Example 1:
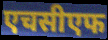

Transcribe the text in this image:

एचसीएफ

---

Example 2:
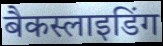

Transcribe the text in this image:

बैकस्लाइडिंग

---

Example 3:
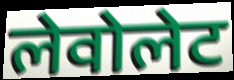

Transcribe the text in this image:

लेवोलेट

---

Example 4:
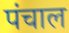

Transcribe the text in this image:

पंचाल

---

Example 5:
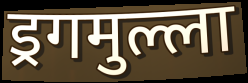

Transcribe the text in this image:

ड्रगमुल्ला